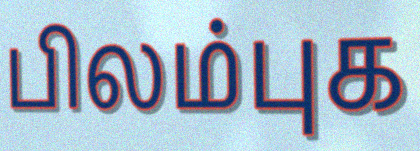
பிலம்புக